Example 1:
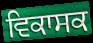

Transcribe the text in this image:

ਵਿਕਾਸਕ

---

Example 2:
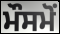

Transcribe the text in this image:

ਮੌਸਮੋਂ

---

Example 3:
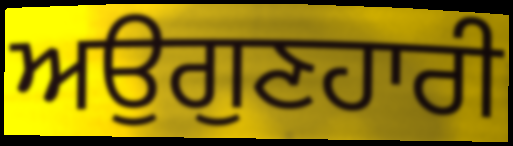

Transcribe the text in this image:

ਅਉਗੁਣਹਾਰੀ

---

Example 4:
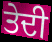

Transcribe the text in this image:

ਤੇਦੀ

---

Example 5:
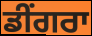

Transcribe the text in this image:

ਡੀਂਗਰਾ